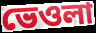
ভেওলা